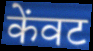
केंवट